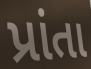
પ્રાંતા